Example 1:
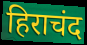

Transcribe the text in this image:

हिराचंद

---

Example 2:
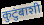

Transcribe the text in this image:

कुटुंबाशी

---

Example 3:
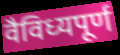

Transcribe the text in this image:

वैविध्यपूर्ण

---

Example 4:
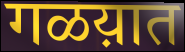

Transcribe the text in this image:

गळय़ात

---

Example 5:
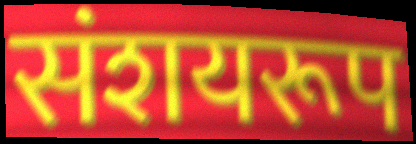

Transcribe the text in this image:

संशयरूप